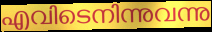
എവിടെനിന്നുവന്നു